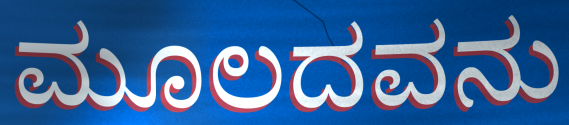
ಮೂಲದವನು